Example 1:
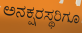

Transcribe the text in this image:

ಅನಕ್ಷರಸ್ಥರಿಗೂ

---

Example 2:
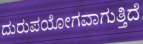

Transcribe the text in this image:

ದುರುಪಯೋಗವಾಗುತ್ತಿದೆ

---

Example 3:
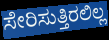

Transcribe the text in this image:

ಸೇರಿಸುತ್ತಿರಲಿಲ್ಲ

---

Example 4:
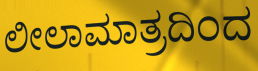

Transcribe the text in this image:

ಲೀಲಾಮಾತ್ರದಿಂದ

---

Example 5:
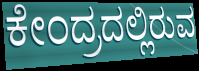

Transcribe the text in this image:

ಕೇಂದ್ರದಲ್ಲಿರುವ